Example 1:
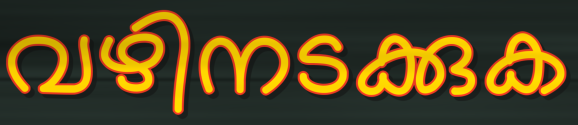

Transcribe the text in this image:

വഴിനടക്കുക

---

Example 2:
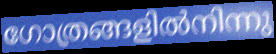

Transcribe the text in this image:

ഗോത്രങ്ങളിൽനിന്നു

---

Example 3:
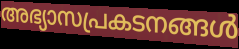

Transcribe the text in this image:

അഭ്യാസപ്രകടനങ്ങൾ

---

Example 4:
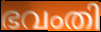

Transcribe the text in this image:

ഭവംതി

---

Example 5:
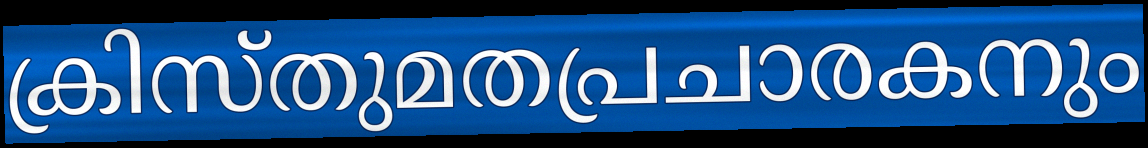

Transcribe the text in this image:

ക്രിസ്തുമതപ്രചാരകനും